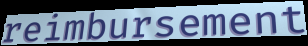
reimbursement